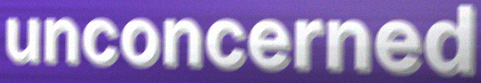
unconcerned